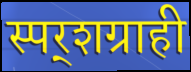
स्पर्शग्राही